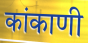
कांकाणी